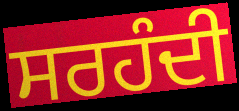
ਸਰਹੰਦੀ